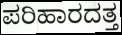
ಪರಿಹಾರದತ್ತ